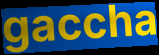
gaccha